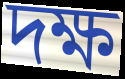
দক্ষ